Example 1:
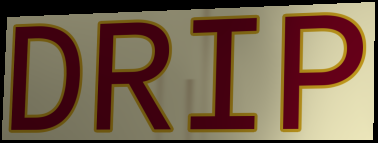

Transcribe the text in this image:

DRIP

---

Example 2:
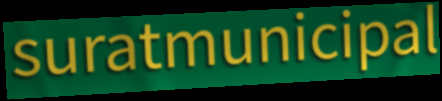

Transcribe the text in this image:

suratmunicipal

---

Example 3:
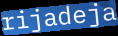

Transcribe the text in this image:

rijadeja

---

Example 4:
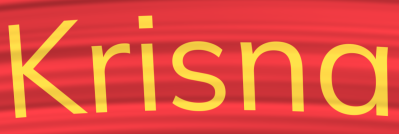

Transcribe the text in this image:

Krisna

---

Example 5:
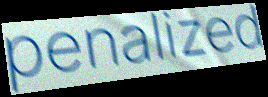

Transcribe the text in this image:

penalized